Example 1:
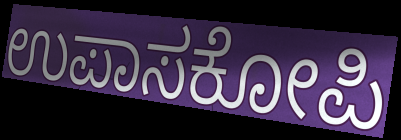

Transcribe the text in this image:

ಉಪಾಸಕೋಪಿ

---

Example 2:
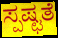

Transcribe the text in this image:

ಸ್ಪಷ್ಟತೆ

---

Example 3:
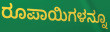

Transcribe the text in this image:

ರೂಪಾಯಿಗಳನ್ನೂ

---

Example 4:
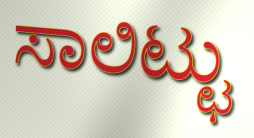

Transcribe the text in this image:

ಸಾಲಿಟ್ಟು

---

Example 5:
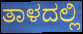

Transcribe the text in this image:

ತಾಳದಲ್ಲಿ